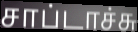
சாப்டாச்சு